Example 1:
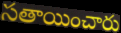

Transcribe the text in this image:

సతాయించారు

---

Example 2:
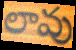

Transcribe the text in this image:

లావు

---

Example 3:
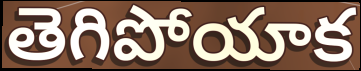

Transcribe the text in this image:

తెగిపోయాక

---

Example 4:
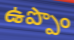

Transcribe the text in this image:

ఉప్పొం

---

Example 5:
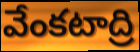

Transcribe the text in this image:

వేంకటాద్రి